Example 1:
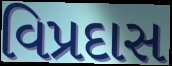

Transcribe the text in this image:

વિપ્રદાસ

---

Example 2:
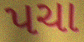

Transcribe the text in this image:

પચા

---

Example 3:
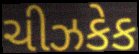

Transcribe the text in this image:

ચીઝકેક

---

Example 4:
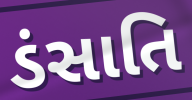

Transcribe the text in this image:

ડંસાતિ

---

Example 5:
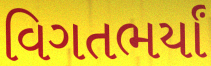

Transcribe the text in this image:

વિગતભર્યાં